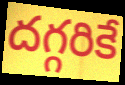
దగ్గరికే